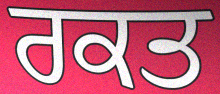
ਰਕਤ